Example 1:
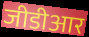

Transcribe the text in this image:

जीडीआर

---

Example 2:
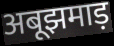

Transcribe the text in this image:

अबूझमाड़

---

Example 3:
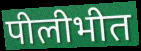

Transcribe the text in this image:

पीलीभीत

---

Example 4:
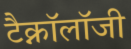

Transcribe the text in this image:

टैक्नॉलॉजी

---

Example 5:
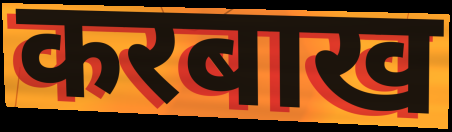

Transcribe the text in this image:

करबाख